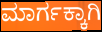
ಮಾರ್ಗಕ್ಕಾಗಿ